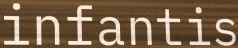
infantis